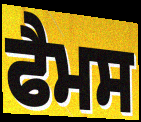
ਫੈਮਸ